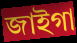
জাইগা